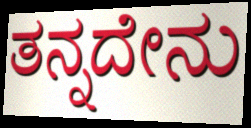
ತನ್ನದೇನು